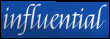
influential